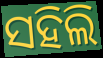
ସହିଲି